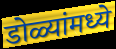
डोळ्यांमध्ये